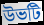
উভটি